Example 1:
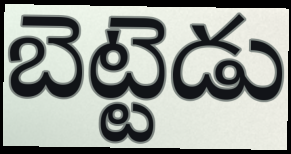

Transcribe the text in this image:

బెట్టెడు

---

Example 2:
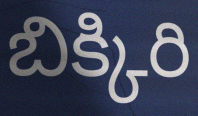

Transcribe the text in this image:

బిక్కిరి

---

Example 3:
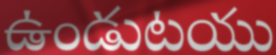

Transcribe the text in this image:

ఉండుటయు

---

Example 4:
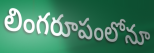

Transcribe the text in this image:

లింగరూపంలోనూ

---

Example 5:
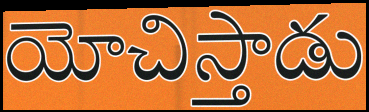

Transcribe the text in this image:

యోచిస్తాడు